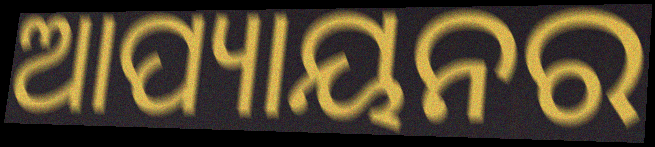
ଆପ୍ୟାୟନର